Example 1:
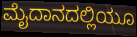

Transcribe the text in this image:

ಮೈದಾನದಲ್ಲಿಯೂ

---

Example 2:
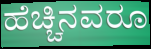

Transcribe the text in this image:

ಹೆಚ್ಚಿನವರೂ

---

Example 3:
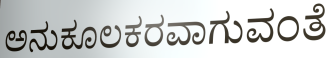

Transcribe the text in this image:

ಅನುಕೂಲಕರವಾಗುವಂತೆ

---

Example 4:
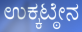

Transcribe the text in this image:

ಉಕ್ಕಟ್ಠೇನ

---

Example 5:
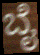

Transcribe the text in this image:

ಬೈ